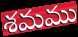
శమము